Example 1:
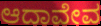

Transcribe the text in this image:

ಆದಾವೇವ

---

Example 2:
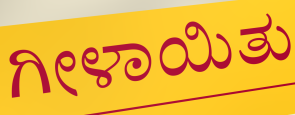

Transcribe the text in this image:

ಗೀಳಾಯಿತು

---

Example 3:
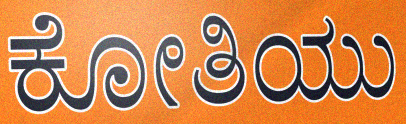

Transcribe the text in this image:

ಕೋತಿಯು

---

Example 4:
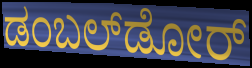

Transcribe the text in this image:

ಡಂಬಲ್‌ಡೋರ್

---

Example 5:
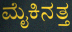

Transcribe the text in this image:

ಮೈಕಿನತ್ತ